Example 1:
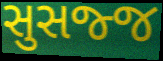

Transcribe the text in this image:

સુસજ્જ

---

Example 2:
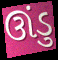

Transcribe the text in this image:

ઊંડુ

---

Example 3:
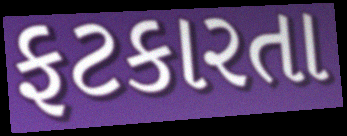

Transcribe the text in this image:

ફટકારતા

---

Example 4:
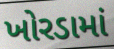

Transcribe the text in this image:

ખોરડામાં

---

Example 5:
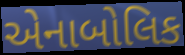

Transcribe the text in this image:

એનાબોલિક